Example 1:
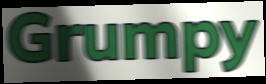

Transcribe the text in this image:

Grumpy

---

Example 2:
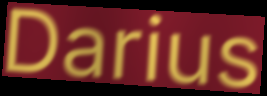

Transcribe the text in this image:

Darius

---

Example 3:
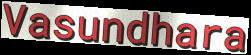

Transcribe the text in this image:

Vasundhara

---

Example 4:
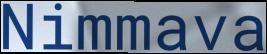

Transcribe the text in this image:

Nimmava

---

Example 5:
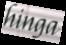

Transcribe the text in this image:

hinga